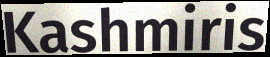
Kashmiris